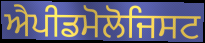
ਐਪੀਡਮੋਲੋਜਿਸਟ